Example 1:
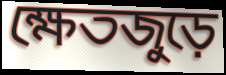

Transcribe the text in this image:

ক্ষেতজুড়ে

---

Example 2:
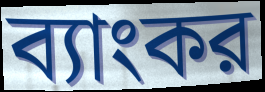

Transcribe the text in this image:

ব্যাংকর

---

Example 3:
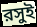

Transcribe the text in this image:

রসুই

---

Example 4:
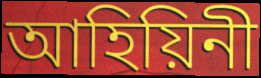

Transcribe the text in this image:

আহিয়িনী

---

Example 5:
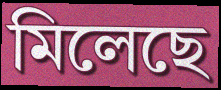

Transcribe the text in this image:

মিলেছে